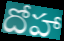
దోహా